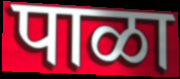
पाळा